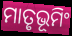
ମାତୃଭୂମିଂ